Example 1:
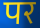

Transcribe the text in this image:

पर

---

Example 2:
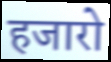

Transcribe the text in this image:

हजारो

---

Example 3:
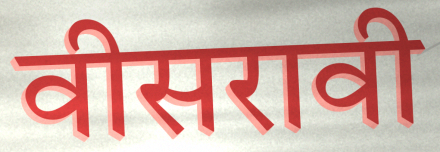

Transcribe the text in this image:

वीसरावी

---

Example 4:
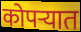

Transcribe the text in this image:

कोपर्‍यात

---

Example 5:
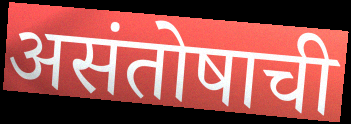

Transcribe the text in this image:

असंतोषाची